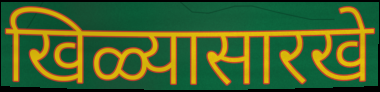
खिळ्यासारखे